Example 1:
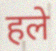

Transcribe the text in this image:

हले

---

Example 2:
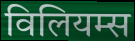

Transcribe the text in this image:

विलियम्‍स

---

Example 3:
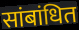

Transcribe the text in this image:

सांबांधित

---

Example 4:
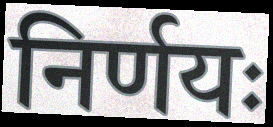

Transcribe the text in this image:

निर्णयः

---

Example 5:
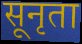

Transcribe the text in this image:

सूनृता